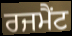
ਰਜਮੈਂਟ